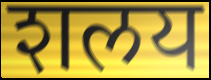
शलय